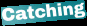
Catching